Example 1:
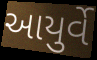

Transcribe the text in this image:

આયુર્વે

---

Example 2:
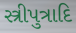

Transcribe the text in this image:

સ્ત્રીપુત્રાદિ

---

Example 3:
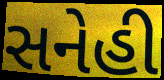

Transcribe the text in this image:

સનેહી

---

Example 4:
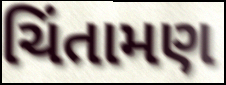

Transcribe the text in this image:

ચિંતામણ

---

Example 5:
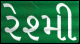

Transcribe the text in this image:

રેશ્મી